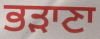
ਭੜਾਣਾ